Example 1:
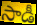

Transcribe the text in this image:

సాడీ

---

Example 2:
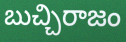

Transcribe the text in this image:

బుచ్చిరాజం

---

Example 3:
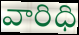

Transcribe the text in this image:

వారిధి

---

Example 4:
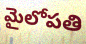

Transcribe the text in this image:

మైలోపతి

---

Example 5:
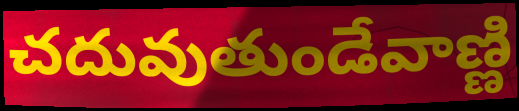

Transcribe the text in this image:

చదువుతుండేవాణ్ణి